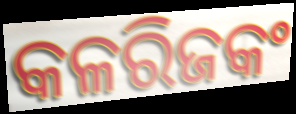
କଳରିଜକଂ